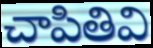
చాపితివి